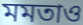
মমতাও